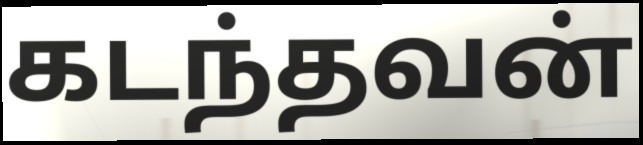
கடந்தவன்